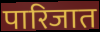
पारिजात